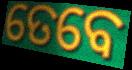
ତେବେ